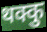
थक्कु